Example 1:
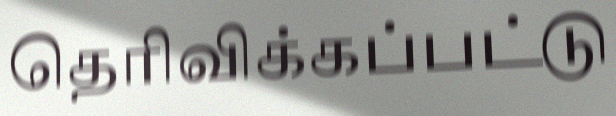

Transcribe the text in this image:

தெரிவிக்கப்பட்டு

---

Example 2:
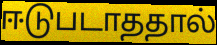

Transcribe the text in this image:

ஈடுபடாததால்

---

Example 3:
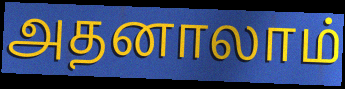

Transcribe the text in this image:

அதனாலாம்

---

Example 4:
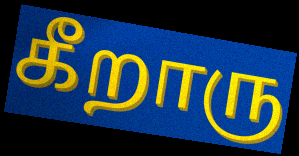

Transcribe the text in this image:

கீறாரு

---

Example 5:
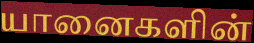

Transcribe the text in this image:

யானைகளின்